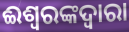
ଈଶ୍ୱରଙ୍କଦ୍ୱାରା